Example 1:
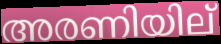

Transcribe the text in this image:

അരണിയില്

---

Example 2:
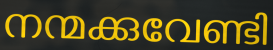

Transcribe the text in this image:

നന്മക്കുവേണ്ടി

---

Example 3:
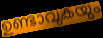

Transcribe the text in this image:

ഉണ്ടാവുകയും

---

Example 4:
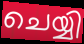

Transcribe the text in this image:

ചെയ്യി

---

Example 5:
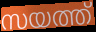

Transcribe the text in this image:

സയത്ത്